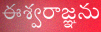
ఈశ్వరాజ్ఞను